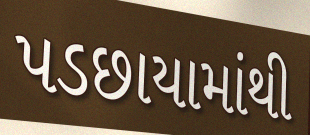
પડછાયામાંથી